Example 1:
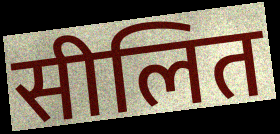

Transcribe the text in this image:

सीलित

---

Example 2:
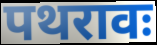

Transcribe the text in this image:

पथरावः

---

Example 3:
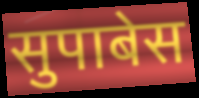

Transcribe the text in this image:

सुपाबेस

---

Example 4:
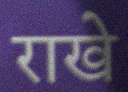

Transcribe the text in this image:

राखे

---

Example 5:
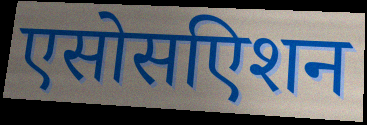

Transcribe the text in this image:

एसोसएिशन